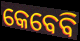
କେବେବି